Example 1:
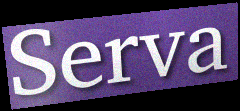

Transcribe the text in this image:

Serva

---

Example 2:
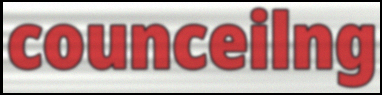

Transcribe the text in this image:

counceilng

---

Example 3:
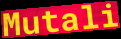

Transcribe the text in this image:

Mutali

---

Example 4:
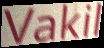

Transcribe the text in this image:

Vakil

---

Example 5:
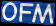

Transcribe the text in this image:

OFM